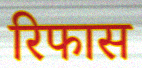
रिफास